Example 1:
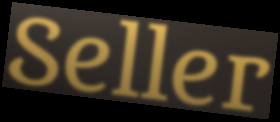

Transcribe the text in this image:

Seller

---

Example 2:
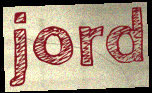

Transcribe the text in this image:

jord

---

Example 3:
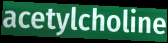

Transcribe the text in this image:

acetylcholine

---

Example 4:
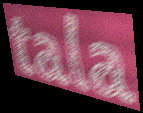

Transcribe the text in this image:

tala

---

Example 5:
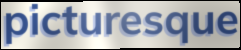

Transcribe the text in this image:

picturesque